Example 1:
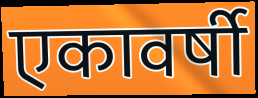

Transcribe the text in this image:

एकावर्षी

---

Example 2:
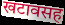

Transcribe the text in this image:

खटावसह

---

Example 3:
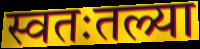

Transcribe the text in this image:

स्वतःतल्या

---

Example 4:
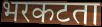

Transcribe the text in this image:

भरकटता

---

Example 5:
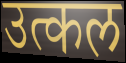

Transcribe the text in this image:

उत्कल